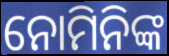
ନୋମିନିଙ୍କ